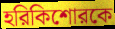
হরিকিশোরকে